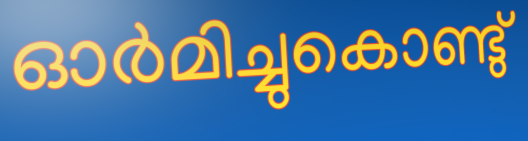
ഓർമിച്ചുകൊണ്ടു്